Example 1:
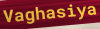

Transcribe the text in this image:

Vaghasiya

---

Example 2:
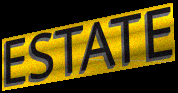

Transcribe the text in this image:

ESTATE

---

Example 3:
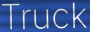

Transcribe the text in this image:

Truck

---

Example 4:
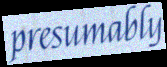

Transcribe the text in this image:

presumably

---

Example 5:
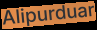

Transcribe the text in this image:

Alipurduar